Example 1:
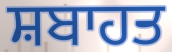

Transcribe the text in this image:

ਸ਼ਬਾਹਤ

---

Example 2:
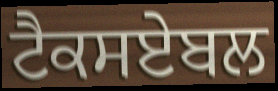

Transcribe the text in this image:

ਟੈਕਸਏਬਲ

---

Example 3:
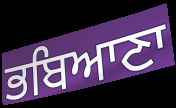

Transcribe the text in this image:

ਭਬਿਆਣਾ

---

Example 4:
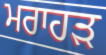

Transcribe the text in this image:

ਮਰਾਹੜ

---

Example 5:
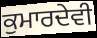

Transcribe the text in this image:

ਕੁਮਾਰਦੇਵੀ